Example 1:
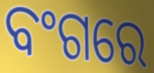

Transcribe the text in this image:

ବଂଗରେ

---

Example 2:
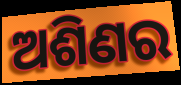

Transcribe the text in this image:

ଅଶିଣର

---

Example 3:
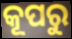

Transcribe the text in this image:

କୂପରୁ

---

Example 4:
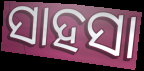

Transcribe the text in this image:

ସାହସା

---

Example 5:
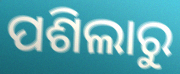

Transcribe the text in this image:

ପଶିଲାରୁ